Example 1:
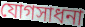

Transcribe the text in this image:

যোগসাধনা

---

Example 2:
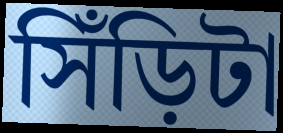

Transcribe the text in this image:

সিঁড়িটা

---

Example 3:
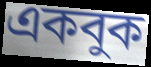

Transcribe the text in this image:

একবুক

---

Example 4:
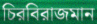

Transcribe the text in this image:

চিরবিরাজমান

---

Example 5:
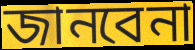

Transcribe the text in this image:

জানবেনা